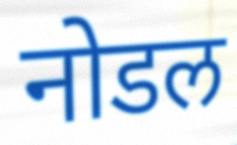
नोडल